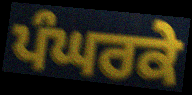
ਪੰਘਰਕੇ